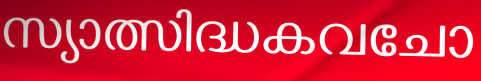
സ്യാത്സിദ്ധകവചോ